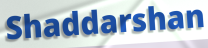
Shaddarshan